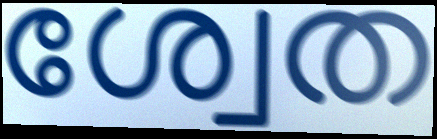
ശ്വേത